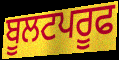
ਬੂਲਟਪਰੂਫ